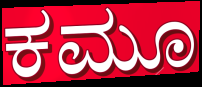
ಕಮೂ